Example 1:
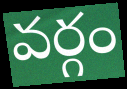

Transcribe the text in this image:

వర్గం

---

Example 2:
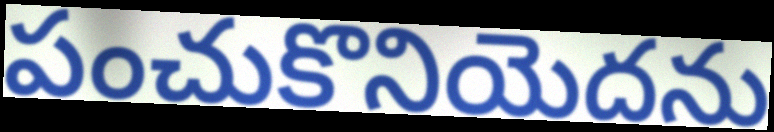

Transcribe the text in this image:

పంచుకొనియెదను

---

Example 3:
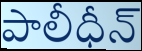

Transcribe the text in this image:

పాలీధీన్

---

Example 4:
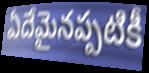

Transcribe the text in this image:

ఏదేమైనప్పటికీ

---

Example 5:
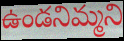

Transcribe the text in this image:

ఉండనిమ్మని